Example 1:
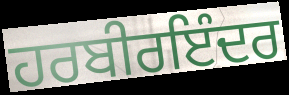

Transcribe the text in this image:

ਹਰਬੀਰਇੰਦਰ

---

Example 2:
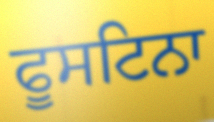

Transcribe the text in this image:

ਫੂਸਟਿਨਾ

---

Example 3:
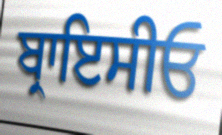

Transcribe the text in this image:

ਬ੍ਰਾਇਸੀਓ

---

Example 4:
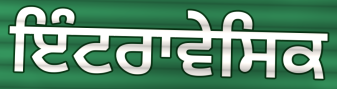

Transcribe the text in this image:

ਇੰਟਰਾਵੇਸਿਕ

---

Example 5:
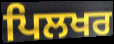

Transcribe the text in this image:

ਪਿਲਖਰ